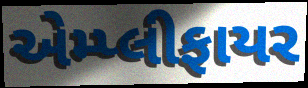
એમ્પ્લીફાયર